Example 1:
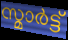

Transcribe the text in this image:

സ്മാർട്ട്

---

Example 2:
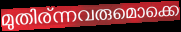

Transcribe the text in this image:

മുതിര്ന്നവരുമൊക്കെ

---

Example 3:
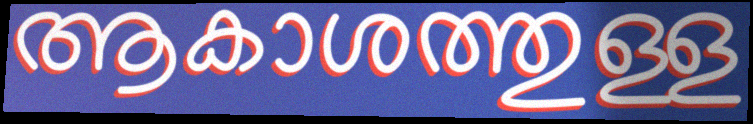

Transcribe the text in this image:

ആകാശത്തുള്ള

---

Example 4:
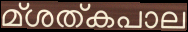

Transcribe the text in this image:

മ്ശത്കപാല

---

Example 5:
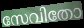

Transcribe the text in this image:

സേവിതോ